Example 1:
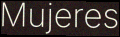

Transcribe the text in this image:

Mujeres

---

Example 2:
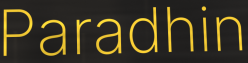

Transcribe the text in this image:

Paradhin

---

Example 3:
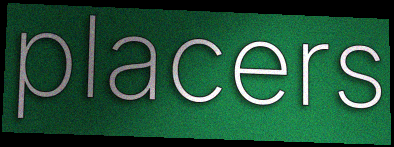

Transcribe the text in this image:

placers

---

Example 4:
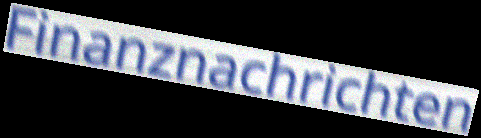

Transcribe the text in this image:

Finanznachrichten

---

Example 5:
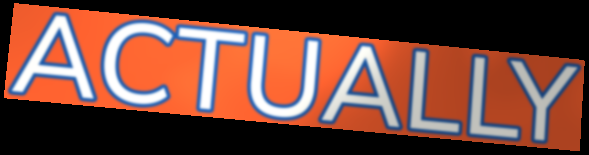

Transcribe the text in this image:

ACTUALLY